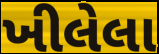
ખીલેલા